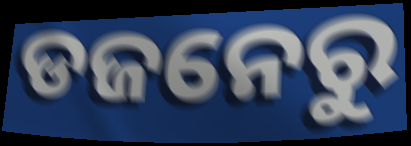
ଡଜନେରୁ